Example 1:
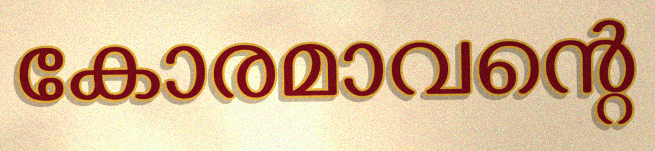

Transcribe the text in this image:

കോരമാവന്റെ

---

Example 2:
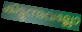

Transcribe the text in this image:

കിട്ടുന്നുവല്ലോ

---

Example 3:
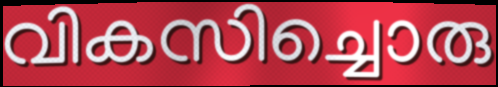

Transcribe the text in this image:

വികസിച്ചൊരു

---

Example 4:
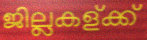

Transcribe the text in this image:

ജില്ലകള്ക്ക്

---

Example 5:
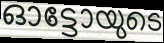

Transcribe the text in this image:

ഓട്ടോയുടെ